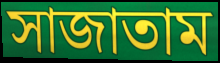
সাজাতাম